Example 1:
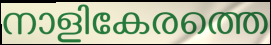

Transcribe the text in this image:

നാളികേരത്തെ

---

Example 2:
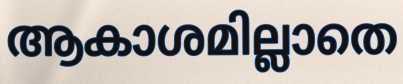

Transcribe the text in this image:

ആകാശമില്ലാതെ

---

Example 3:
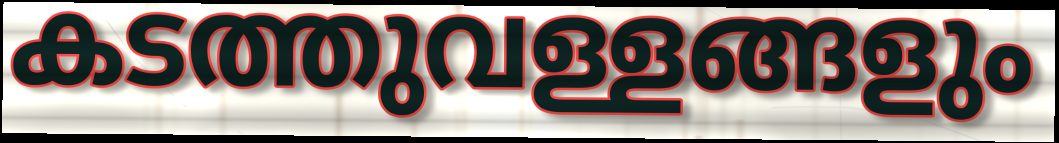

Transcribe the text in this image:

കടത്തുവള്ളങ്ങളും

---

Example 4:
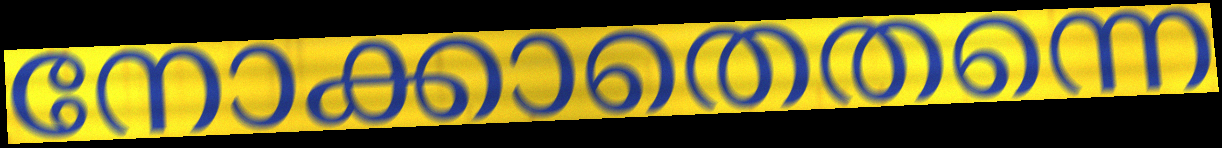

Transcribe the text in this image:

നോക്കാതെതന്നെ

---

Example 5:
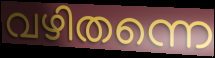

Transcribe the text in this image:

വഴിതന്നെ